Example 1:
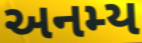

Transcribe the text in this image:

અનમ્ય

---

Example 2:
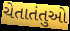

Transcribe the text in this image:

ચેતાતંતુઓ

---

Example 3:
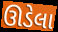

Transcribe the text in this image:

ઊડેલા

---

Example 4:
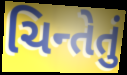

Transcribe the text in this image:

ચિન્તેતું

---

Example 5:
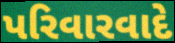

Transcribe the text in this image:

પરિવારવાદે